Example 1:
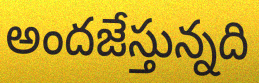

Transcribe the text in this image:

అందజేస్తున్నది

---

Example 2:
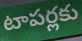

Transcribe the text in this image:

టాపర్లకు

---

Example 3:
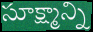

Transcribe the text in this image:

సూక్ష్మాన్ని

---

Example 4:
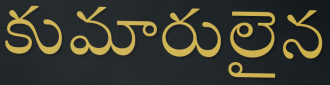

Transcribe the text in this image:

కుమారులైన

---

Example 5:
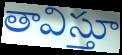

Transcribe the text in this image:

తావిస్తూ